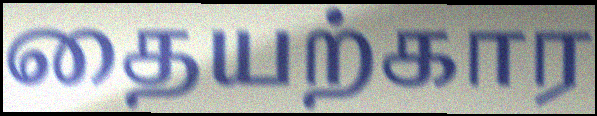
தையற்கார